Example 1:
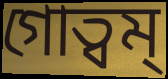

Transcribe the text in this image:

গোত্বম্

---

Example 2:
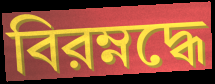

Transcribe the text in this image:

বিরম্নদ্ধে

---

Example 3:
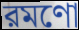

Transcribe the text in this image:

রমণো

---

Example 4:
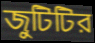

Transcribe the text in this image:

জুটিটির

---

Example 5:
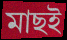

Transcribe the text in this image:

মাছই